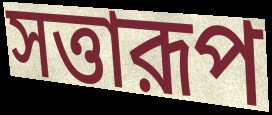
সত্তারূপ